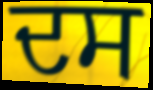
ਦਸ